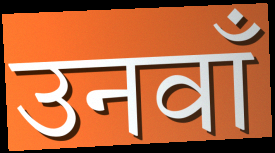
उनवाँ